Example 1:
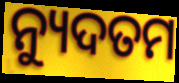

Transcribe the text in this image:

ନ୍ୟୁଦତମ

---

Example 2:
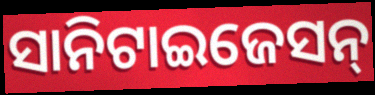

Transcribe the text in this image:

ସାନିଟାଇଜେସନ୍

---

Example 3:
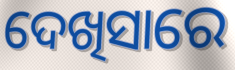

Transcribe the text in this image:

ଦେଖିସାରେ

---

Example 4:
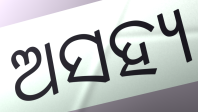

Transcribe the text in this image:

ଅସହ୍ୟ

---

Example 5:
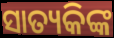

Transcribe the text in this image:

ସାତ୍ୟକିଙ୍କ